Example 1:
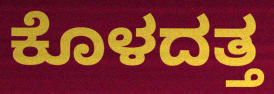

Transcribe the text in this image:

ಕೊಳದತ್ತ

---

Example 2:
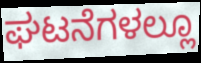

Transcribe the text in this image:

ಘಟನೆಗಳಲ್ಲೂ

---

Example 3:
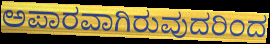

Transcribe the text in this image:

ಅಪಾರವಾಗಿರುವುದರಿಂದ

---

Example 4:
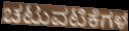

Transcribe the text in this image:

ಚಟುವಟಿಕೆಗಳ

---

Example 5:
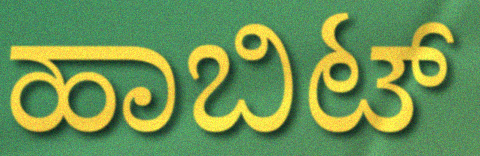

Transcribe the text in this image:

ಹಾಬಿಟ್